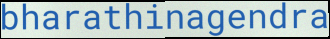
bharathinagendra